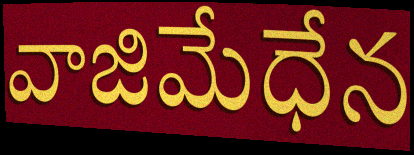
వాజిమేధేన